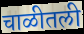
चाळीतली